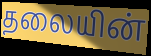
தலையின்